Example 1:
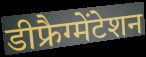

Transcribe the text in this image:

डीफ्रैग्मेंटेशन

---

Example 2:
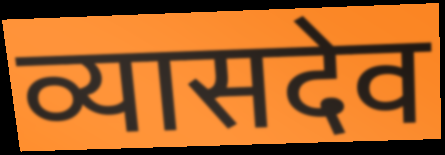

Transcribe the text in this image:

व्यासदेव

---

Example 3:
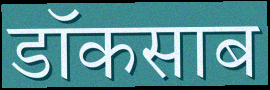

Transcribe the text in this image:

डॉकसाब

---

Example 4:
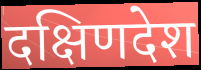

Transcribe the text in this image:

दक्षिणदेश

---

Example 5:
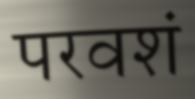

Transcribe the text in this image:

परवशं